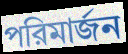
পরিমার্জন